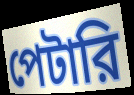
পেটারি